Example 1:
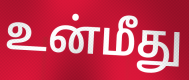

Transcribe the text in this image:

உன்மீது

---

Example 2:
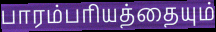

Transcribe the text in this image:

பாரம்பரியத்தையும்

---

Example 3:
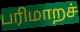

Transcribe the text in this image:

பரிமாறச்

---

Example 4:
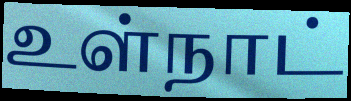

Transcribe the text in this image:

உள்நாட்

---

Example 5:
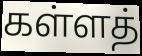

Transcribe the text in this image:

கள்ளத்